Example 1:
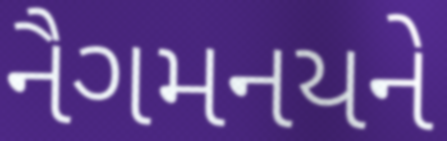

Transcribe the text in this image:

નૈગમનયને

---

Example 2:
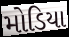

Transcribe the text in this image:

મોડિયા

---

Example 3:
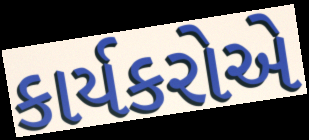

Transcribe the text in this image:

કાર્યકરોએ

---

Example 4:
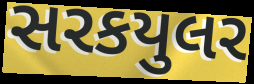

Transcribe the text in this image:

સરકયુલર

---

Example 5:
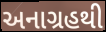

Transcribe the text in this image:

અનાગ્રહથી